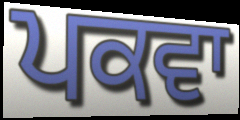
ਪਕਵਾ